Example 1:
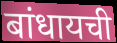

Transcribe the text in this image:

बांधायची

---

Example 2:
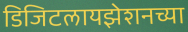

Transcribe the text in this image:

डिजिटलायझेशनच्या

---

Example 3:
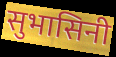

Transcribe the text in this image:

सुभासिनी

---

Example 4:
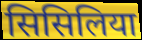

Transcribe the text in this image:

सिसिलिया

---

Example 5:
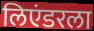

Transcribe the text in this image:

लिएंडरला